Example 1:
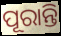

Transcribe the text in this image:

ପୂରାନ୍ତି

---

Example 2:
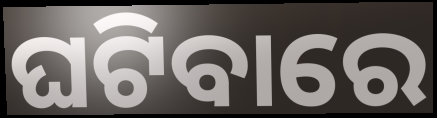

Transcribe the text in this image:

ଘଟିବାରେ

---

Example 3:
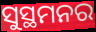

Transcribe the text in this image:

ସୁସ୍ଥମନର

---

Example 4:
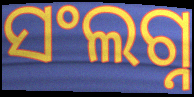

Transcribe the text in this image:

ସଂଲଗ୍ନ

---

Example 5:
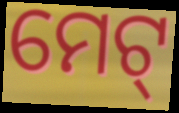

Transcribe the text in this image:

ମେଟ୍